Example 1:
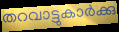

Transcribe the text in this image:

തറവാട്ടുകാർക്കു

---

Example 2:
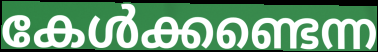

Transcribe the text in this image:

കേൾക്കണ്ടെന്ന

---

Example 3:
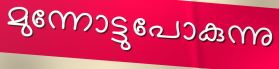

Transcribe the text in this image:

മുന്നോട്ടുപോകുന്നു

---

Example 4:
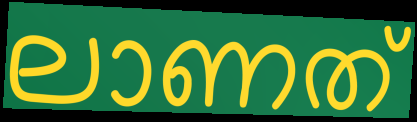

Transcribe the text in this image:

ലാണത്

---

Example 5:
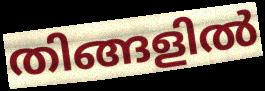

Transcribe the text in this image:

തിങ്ങളിൽ